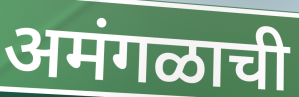
अमंगळाची